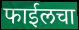
फाईलचा